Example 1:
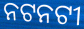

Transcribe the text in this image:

ନଟନଟୀ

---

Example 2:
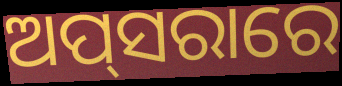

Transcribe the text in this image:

ଅପ୍‌ସରାରେ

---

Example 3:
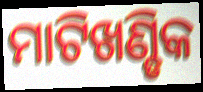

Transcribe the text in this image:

ମାଟିଖଣ୍ଡିକ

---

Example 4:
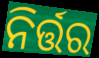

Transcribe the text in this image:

ନିର୍ତ୍ତର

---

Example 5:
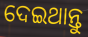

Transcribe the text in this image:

ଦେଇଥାନ୍ତୁ